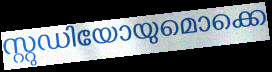
സ്റ്റുഡിയോയുമൊക്കെ